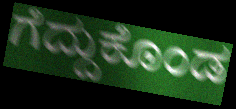
ಗೆದ್ದುಕೊಂಡ